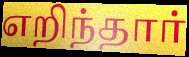
எறிந்தார்